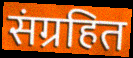
संग्रहित